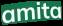
amita